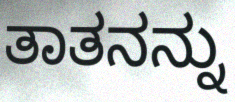
ತಾತನನ್ನು